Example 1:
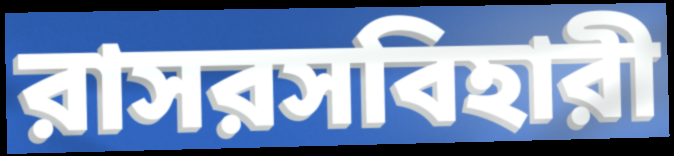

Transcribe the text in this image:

রাসরসবিহারী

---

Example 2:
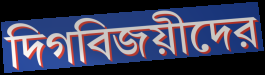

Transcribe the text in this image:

দিগবিজয়ীদের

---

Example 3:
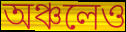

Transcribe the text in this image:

অঞ্চলেও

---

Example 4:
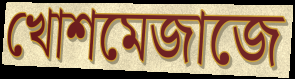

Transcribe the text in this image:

খোশমেজাজে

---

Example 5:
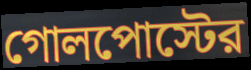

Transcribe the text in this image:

গোলপোস্টের